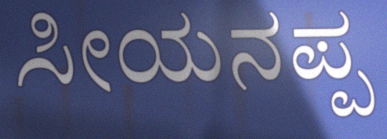
ಸೀಯನಪ್ಪ